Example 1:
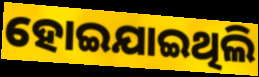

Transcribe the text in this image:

ହୋଇଯାଇଥିଲି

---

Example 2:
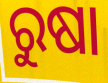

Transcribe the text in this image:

ରୁଷା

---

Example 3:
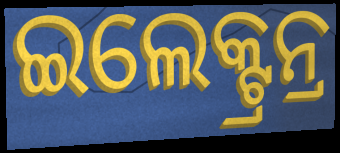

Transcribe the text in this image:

ଇଲେକ୍ଟ୍ରନ୍ର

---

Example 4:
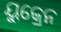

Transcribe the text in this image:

ୟୁକ୍ରେନ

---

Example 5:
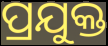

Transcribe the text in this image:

ପ୍ରଯୁକ୍ତ